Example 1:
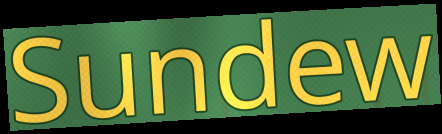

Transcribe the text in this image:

Sundew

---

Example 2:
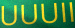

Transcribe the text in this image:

UUUII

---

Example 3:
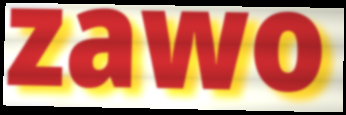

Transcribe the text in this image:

zawo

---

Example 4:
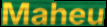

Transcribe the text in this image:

Maheu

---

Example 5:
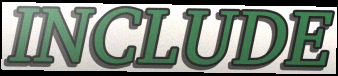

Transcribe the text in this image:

INCLUDE